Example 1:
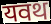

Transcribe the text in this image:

यवथ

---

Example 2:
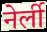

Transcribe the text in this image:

नेर्ली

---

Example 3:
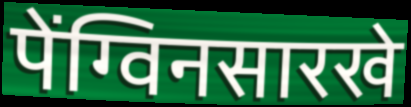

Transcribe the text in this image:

पेंग्विनसारखे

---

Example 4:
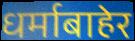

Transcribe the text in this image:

धर्माबाहेर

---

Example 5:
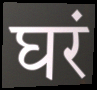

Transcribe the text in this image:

घरं